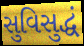
સુવિસુદ્ધં